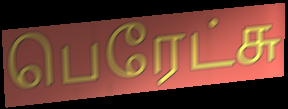
பெரேட்சு